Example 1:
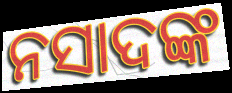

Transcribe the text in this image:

ନସାଦଙ୍କ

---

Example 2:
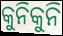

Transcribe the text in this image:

କୁନିକୁନି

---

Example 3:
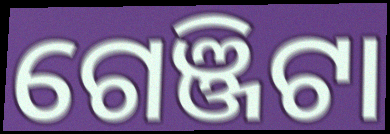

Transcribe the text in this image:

ଗେଞ୍ଜିଟା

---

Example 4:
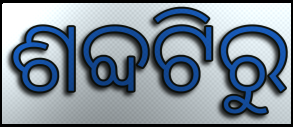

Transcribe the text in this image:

ଶବ୍ଦଟିରୁ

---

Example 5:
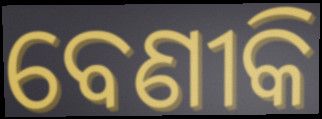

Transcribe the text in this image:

ବେଣୀକି